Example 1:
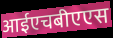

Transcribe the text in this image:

आईएचबीएएस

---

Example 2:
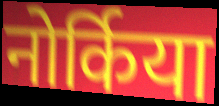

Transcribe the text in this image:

नोर्किया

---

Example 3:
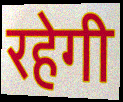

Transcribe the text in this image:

रहेगी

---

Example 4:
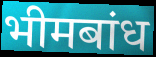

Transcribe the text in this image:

भीमबांध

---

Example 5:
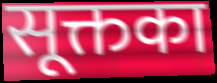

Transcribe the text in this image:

सूक्तका